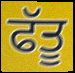
ਫੱਤੂ